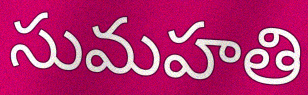
సుమహతి